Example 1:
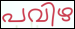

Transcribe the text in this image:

പവിഴ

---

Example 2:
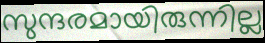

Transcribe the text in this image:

സുന്ദരമായിരുന്നില്ല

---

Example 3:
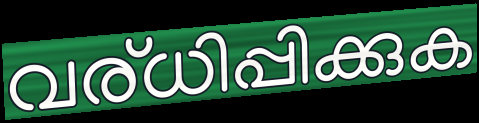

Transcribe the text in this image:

വര്ധിപ്പിക്കുക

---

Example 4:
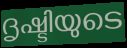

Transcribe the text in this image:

ദൃഷ്ടിയുടെ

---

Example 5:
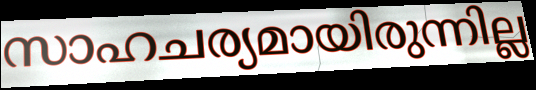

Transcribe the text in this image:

സാഹചര്യമായിരുന്നില്ല